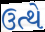
ઉત્થે